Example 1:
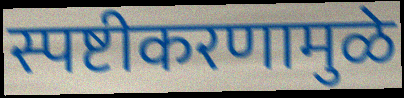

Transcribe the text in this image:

स्पष्टीकरणामुळे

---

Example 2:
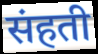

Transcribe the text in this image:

संहती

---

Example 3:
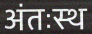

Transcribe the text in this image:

अंतःस्थ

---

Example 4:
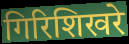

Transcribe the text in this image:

गिरिशिखरे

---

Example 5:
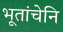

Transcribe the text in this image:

भूतांचेनि